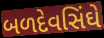
બળદેવસિંઘે